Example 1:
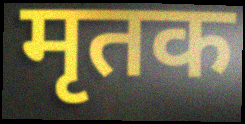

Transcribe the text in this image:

मृतक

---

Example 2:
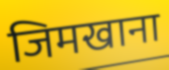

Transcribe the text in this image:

जिमखाना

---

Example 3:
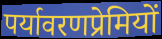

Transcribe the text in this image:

पर्यावरणप्रेमियों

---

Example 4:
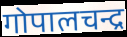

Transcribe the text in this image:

गोपालचन्द्र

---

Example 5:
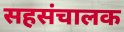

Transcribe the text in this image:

सहसंचालक